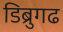
डिब्रुगढ